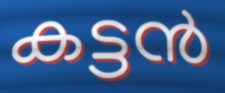
കട്ടൻ